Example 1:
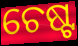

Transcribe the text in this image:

ଚେଷ୍ଟ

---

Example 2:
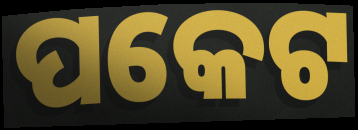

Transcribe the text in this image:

ପକେଟ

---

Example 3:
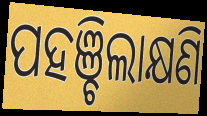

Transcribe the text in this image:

ପହଞ୍ଚିଲାକ୍ଷଣି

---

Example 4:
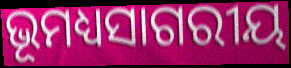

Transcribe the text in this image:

ଭୂମଧ୍ୟସାଗରୀୟ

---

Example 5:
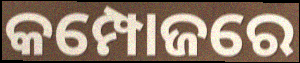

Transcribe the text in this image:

କମ୍ପୋଜରେ